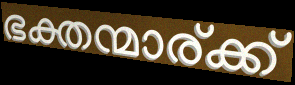
ഭക്തന്മാര്ക്ക്